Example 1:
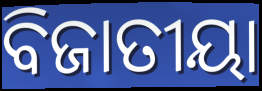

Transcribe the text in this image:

ବିଜାତୀୟା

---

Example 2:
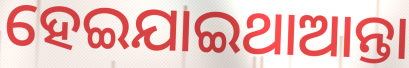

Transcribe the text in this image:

ହେଇଯାଇଥାଆନ୍ତା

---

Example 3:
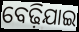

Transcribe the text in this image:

ବେଢ଼ିଯାଇ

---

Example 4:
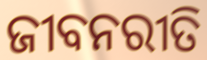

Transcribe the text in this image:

ଜୀବନରୀତି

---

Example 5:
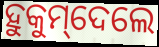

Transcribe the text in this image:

ହୁକୁମ୍‌ଦେଲେ